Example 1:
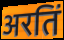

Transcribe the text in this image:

अरतिं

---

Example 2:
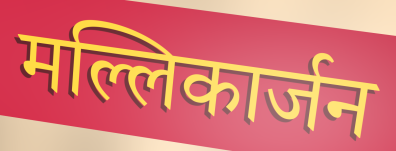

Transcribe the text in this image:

मल्लिकार्जन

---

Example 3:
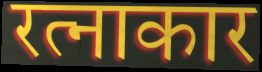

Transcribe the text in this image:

रत्नाकार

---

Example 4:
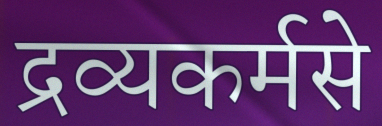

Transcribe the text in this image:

द्रव्यकर्मसे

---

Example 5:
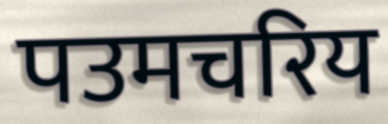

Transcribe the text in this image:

पउमचरिय